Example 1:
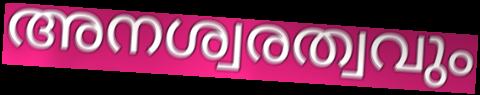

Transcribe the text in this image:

അനശ്വരത്വവും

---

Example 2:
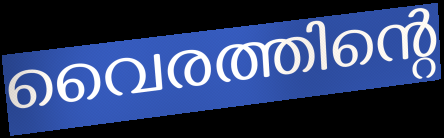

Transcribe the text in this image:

വൈരത്തിന്റെ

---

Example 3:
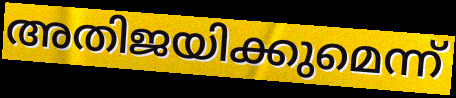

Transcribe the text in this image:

അതിജയിക്കുമെന്ന്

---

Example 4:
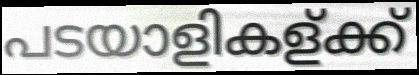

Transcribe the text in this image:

പടയാളികള്ക്ക്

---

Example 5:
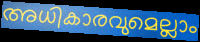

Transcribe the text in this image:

അധികാരവുമെല്ലാം